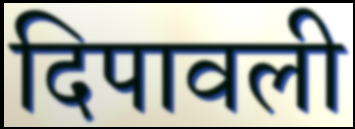
दिपावली